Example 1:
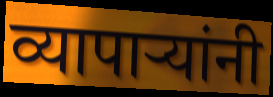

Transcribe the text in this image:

व्यापाऱ्यांनी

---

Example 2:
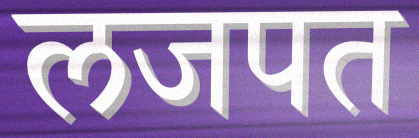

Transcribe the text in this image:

लजपत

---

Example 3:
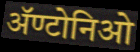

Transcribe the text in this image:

ॲण्टोनिओ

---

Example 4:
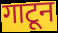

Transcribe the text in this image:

गाटून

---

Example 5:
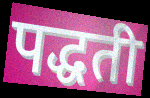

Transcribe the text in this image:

पद्धती